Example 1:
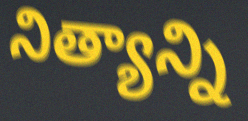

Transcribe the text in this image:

నిత్యాన్ని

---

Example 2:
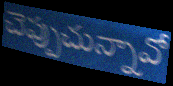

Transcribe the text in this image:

చెప్పుచున్నావో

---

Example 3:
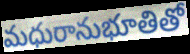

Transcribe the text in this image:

మధురానుభూతితో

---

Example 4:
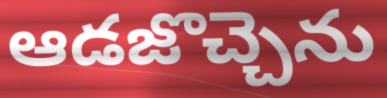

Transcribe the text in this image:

ఆడజొచ్చెను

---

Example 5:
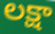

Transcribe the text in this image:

లక్షా